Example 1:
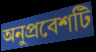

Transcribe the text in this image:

অনুপ্রবেশটি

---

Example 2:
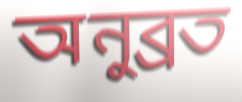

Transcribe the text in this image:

অনুব্রত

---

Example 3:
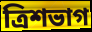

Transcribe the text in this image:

ত্রিশভাগ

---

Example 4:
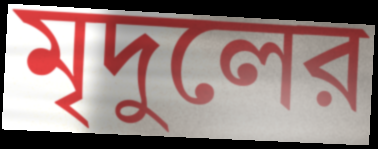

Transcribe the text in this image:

মৃদুলের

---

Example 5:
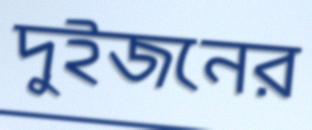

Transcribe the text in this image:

দুইজনের